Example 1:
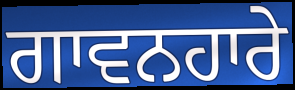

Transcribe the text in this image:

ਗਾਵਨਹਾਰੇ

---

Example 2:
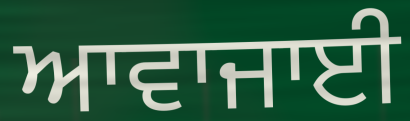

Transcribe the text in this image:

ਆਵਾਜਾਈ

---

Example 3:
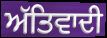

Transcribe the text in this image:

ਅੱਤਿਵਾਦੀ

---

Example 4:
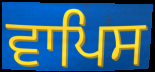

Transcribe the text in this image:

ਵਾਪਿਸ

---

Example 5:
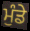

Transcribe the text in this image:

ਮੁੰਡੇ